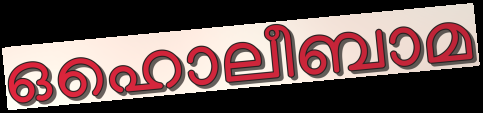
ഒഹൊലീബാമ